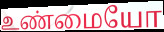
உண்மையோ